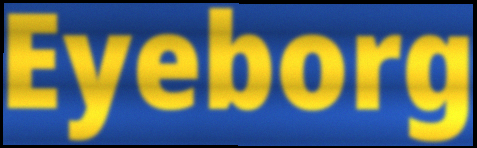
Eyeborg